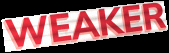
WEAKER